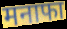
मनाफा